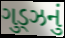
ગુડ્ઝનું